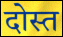
दोस्‍त